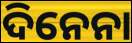
ଦିନେନା